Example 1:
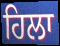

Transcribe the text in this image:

ਹਿਲਾ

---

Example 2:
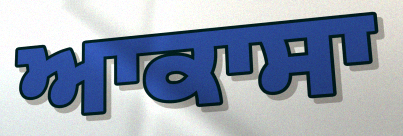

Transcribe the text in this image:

ਆਕਾਸਾ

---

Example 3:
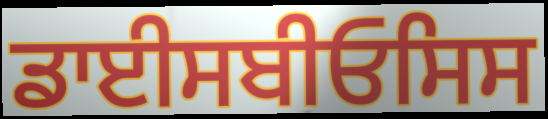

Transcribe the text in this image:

ਡਾਈਸਬੀਓਸਿਸ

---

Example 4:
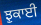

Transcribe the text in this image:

ਝੁਕਾਈ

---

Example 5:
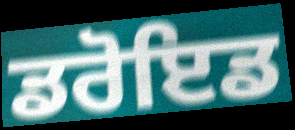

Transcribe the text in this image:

ਡਰੋਇਡ